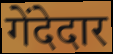
गेंदेदार